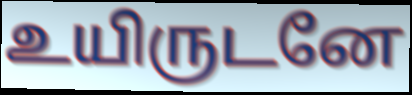
உயிருடனே